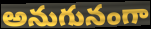
అనుగునంగా